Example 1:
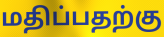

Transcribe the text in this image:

மதிப்பதற்கு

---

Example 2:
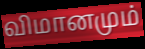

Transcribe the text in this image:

விமானமும்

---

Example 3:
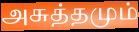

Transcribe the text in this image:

அசுத்தமும்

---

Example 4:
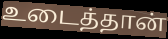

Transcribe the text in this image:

உடைத்தான்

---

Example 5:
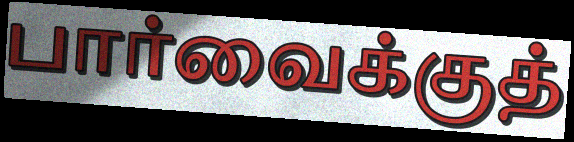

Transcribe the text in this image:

பார்வைக்குத்